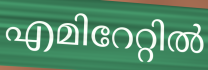
എമിറേറ്റിൽ